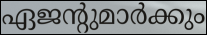
ഏജന്റുമാർക്കും